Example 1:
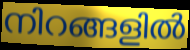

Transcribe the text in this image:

നിറങ്ങളിൽ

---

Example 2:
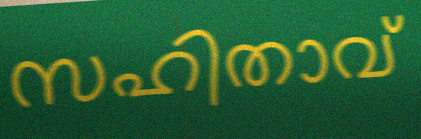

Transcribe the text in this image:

സഹിതാവ്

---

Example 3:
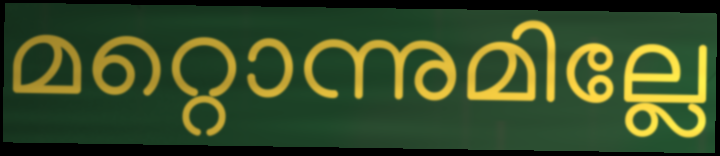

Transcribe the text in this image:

മറ്റൊന്നുമില്ലേ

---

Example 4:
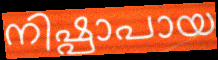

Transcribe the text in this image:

നിഷ്പാപായ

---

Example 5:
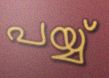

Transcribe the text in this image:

പയ്യ്